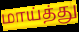
மாய்த்து